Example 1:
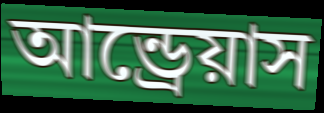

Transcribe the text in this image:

আন্ড্রেয়াস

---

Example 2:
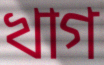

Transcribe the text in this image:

খাগ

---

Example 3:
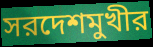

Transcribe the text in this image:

সরদেশমুখীর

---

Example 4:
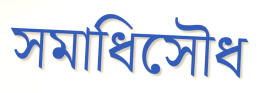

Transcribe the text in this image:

সমাধিসৌধ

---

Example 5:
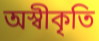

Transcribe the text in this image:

অস্বীকৃতি